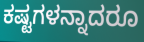
ಕಷ್ಟಗಳನ್ನಾದರೂ